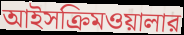
আইসক্রিমওয়ালার